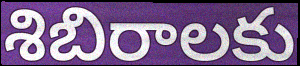
శిబిరాలకు